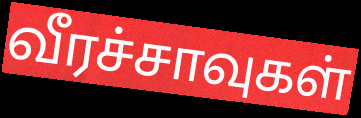
வீரச்சாவுகள்